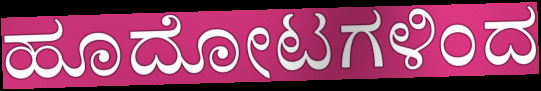
ಹೂದೋಟಗಳಿಂದ